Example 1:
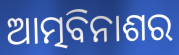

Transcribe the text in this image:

ଆତ୍ମବିନାଶର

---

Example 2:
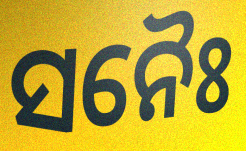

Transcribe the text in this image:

ସନୈଃ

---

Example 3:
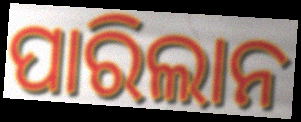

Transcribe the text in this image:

ପାରିଲାନ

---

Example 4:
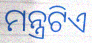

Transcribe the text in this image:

ମନ୍ତ୍ରଟିଏ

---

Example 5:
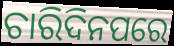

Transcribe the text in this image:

ଚାରିଦିନପରେ